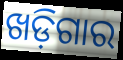
ଖଡ଼ିଗାର